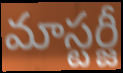
మాస్టర్జీ